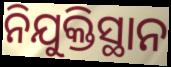
ନିଯୁକ୍ତିସ୍ଥାନ